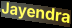
Jayendra